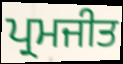
ਪ੍ਰਮਜੀਤ